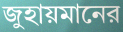
জুহায়মানের